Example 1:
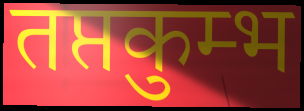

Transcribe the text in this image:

तप्तकुम्भ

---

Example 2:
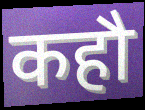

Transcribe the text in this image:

कहौ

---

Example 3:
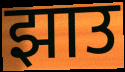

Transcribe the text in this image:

झाउ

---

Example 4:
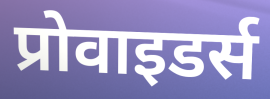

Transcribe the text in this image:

प्रोवाइडर्स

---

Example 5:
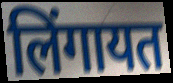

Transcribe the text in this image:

लिंगायत